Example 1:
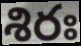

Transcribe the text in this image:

శిరః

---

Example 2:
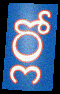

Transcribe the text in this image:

ర్లో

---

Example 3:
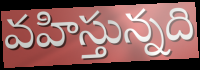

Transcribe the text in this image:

వహిస్తున్నది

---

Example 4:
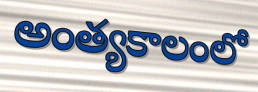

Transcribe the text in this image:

అంత్యకాలంలో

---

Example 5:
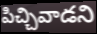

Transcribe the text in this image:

పిచ్చివాడని